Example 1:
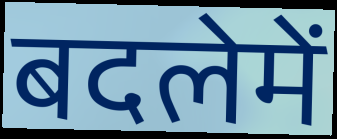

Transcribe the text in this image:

बदलेमें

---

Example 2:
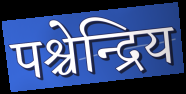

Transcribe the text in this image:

पश्चेन्द्रिय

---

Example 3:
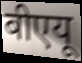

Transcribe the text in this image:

बीएयू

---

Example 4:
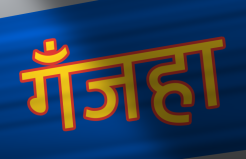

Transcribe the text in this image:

गँजहा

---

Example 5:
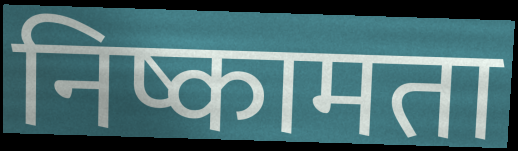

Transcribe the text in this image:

निष्कामता